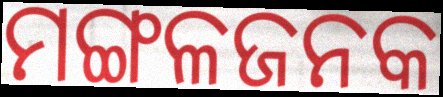
ମଙ୍ଗଳଜନକ